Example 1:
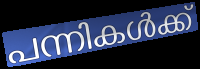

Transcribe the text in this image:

പന്നികൾക്ക്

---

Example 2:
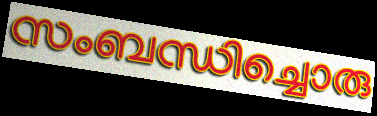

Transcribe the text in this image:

സംബന്ധിച്ചൊരു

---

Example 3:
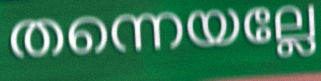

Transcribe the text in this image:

തന്നെയല്ലേ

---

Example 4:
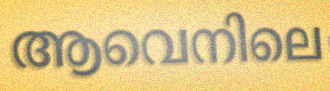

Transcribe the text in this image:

ആവെനിലെ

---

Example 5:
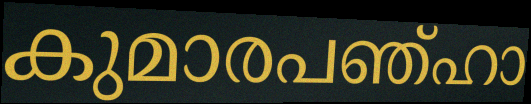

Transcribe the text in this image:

കുമാരപഞ്ഹാ